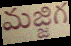
మజ్జిగ